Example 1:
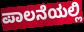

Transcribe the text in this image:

ಪಾಲನೆಯಲ್ಲಿ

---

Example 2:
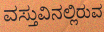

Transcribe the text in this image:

ವಸ್ತುವಿನಲ್ಲಿರುವ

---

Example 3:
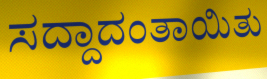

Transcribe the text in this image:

ಸದ್ದಾದಂತಾಯಿತು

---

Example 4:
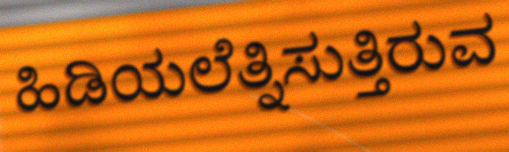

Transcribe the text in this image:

ಹಿಡಿಯಲೆತ್ನಿಸುತ್ತಿರುವ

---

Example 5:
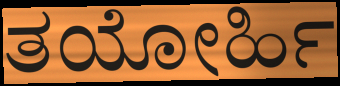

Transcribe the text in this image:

ತಯೋರ್ಹಿ